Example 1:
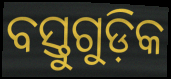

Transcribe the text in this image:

ବସ୍ତୁଗୁଡ଼ିକ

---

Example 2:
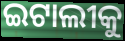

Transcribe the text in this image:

ଇଟାଲୀକୁ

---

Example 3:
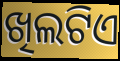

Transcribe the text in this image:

ଖିଲଟିଏ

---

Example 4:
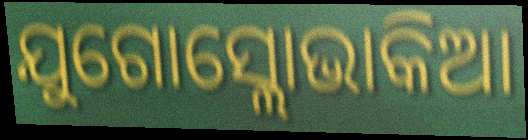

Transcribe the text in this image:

ଯୁଗୋସ୍ଲୋଭାକିଆ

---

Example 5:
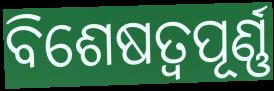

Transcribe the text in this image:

ବିଶେଷତ୍ୱପୂର୍ଣ୍ଣ